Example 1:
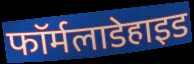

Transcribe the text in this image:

फॉर्मलाडेहाइड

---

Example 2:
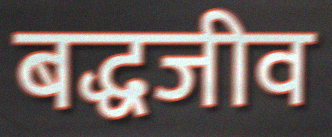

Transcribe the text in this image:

बद्धजीव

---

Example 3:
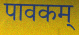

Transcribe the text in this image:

पावकम्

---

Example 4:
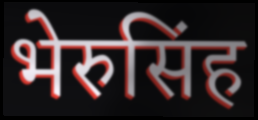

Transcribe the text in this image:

भेरुसिंह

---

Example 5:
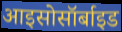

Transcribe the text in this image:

आइसोसॉर्बाइड